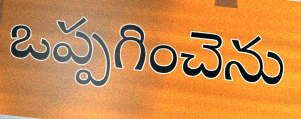
ఒప్పగించెను